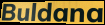
Buldana